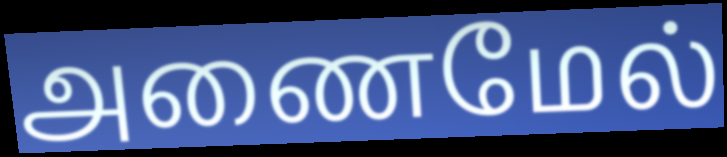
அணைமேல்